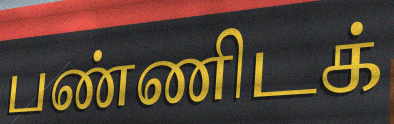
பண்ணிடக்